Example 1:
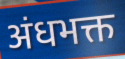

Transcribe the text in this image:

अंधभक्त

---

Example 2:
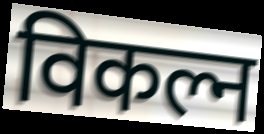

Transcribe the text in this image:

विकल्न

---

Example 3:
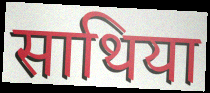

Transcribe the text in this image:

साथिया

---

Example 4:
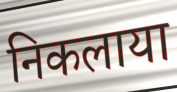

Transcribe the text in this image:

निकलाया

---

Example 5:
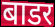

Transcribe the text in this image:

बाडर